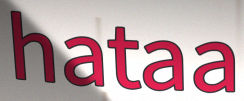
hataa